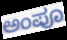
ಅಂಪೂ